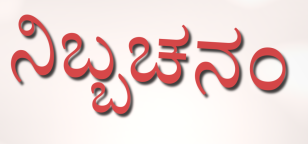
ನಿಬ್ಬಚನಂ